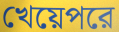
খেয়েপরে